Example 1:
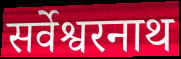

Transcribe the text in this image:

सर्वेश्वरनाथ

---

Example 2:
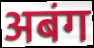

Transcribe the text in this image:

अबंग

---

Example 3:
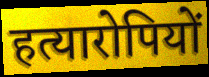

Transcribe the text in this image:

हत्‍यारोपियों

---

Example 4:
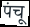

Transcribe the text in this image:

पंचू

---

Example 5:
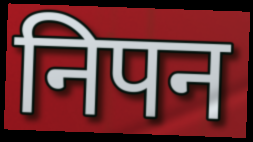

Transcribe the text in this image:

निपन